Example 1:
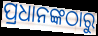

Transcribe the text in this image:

ପ୍ରଧାନଙ୍କଠାରୁ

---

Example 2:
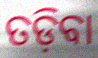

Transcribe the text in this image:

ତଡ଼ିବା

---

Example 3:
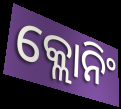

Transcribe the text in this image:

କ୍ଲୋନିଂ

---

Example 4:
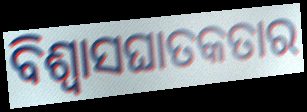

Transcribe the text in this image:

ବିଶ୍ୱାସଘାତକତାର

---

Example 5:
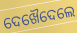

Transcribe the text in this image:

ଦେଖୈଦେଲେ